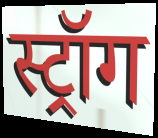
स्ट्रॉग